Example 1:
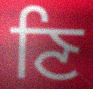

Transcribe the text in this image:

ਣਿ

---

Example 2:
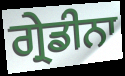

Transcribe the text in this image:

ਗ੍ਰੇਡੀਨਾ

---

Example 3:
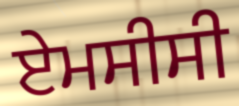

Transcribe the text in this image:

ਏਮਸੀਸੀ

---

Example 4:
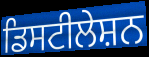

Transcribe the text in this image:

ਡਿਸਟੀਲੇਸ਼ਨ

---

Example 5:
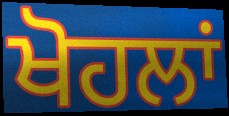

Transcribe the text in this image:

ਖੋਹਲਾਂ